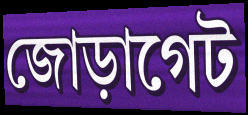
জোড়াগেট